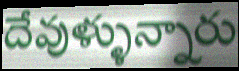
దేవుళ్ళున్నారు